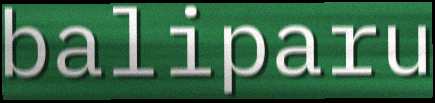
baliparu